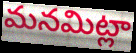
మనమిట్లా